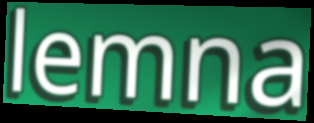
lemna